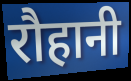
रौहानी